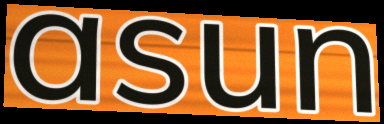
asun